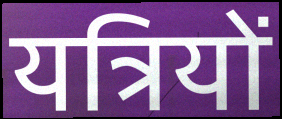
यत्रियों